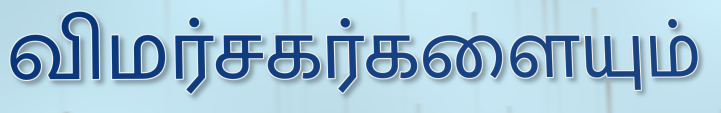
விமர்சகர்களையும்